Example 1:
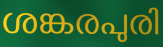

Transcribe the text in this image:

ശങ്കരപുരി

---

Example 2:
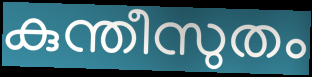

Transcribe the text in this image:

കുന്തീസുതം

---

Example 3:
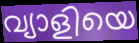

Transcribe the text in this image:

വ്യാളിയെ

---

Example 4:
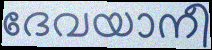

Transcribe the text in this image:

ദേവയാനീ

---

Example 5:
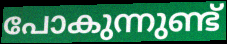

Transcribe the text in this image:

പോകുന്നുണ്ട്